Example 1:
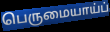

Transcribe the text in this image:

பெருமையாய்ப்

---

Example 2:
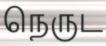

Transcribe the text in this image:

நெருட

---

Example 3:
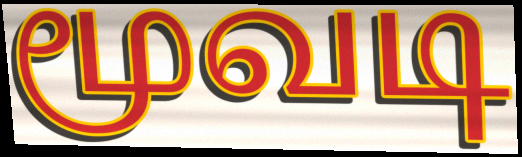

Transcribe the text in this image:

மூவடி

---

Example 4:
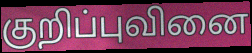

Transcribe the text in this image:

குறிப்புவினை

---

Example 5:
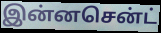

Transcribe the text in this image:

இன்னசென்ட்